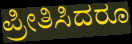
ಪ್ರೀತಿಸಿದರೂ